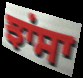
ਝਾਂਸਾ